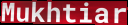
Mukhtiar